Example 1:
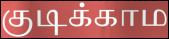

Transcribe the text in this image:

குடிக்காம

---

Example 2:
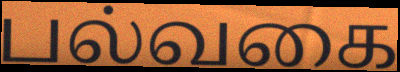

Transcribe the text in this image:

பல்வகை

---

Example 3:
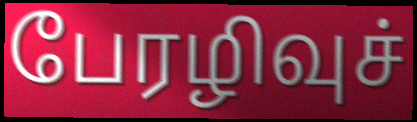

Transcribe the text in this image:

பேரழிவுச்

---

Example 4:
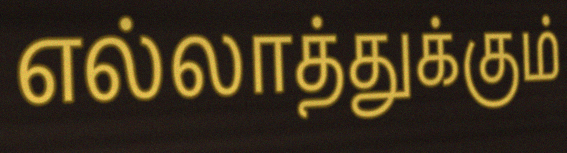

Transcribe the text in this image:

எல்லாத்துக்கும்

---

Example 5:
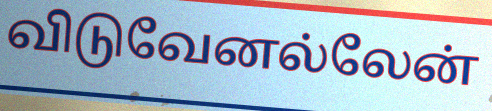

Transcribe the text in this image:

விடுவேனல்லேன்